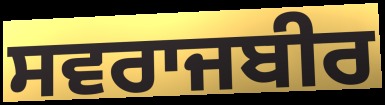
ਸਵਰਾਜਬੀਰ